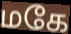
மகே